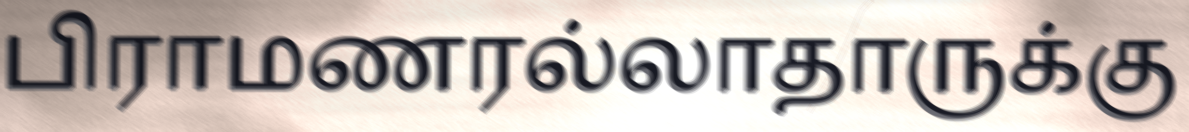
பிராமணரல்லாதாருக்கு